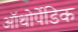
ऑथोर्पेडिक